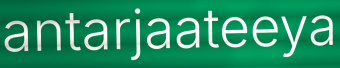
antarjaateeya